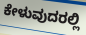
ಕೇಳುವುದರಲ್ಲಿ